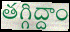
తగ్గిద్దాం